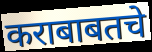
कराबाबतचे